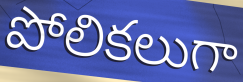
పోలికలుగా